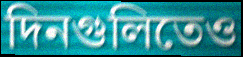
দিনগুলিতেও